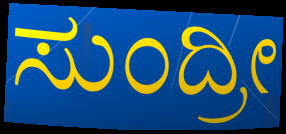
ಸುಂದ್ರೀ